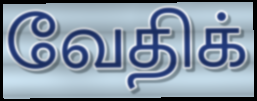
வேதிக்